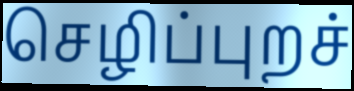
செழிப்புறச்